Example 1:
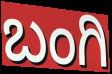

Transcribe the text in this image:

ಬಂಗಿ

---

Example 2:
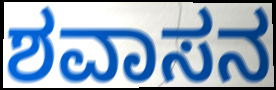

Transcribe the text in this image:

ಶವಾಸನ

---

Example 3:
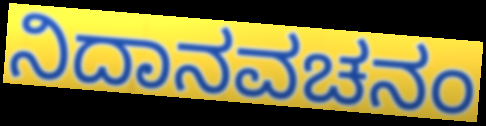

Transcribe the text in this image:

ನಿದಾನವಚನಂ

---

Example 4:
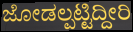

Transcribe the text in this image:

ಜೋಡಲ್ಪಟ್ಟಿದ್ದೀರಿ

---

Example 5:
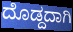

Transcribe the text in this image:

ದೊಡ್ದದಾಗಿ